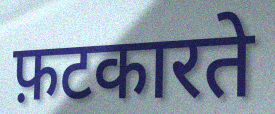
फ़टकारते